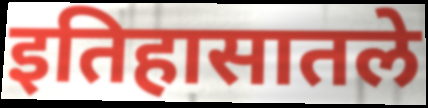
इतिहासातले